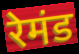
रेमंड